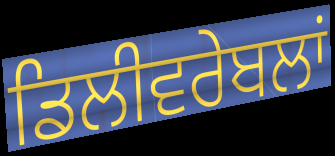
ਡਿਲੀਵਰੇਬਲਾਂ